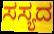
ಸಸ್ಯದ